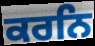
ਕਰਨਿ